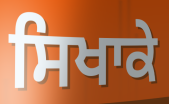
ਸਿਖਾਕੇ